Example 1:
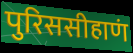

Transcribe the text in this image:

पुरिससीहाणं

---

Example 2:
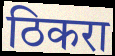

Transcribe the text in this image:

ठिकरा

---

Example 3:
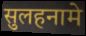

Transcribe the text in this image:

सुलहनामे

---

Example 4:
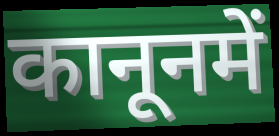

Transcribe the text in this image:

कानूनमें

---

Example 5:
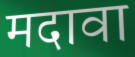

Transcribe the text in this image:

मदावा